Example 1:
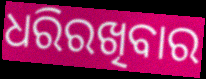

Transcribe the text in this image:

ଧରିରଖିବାର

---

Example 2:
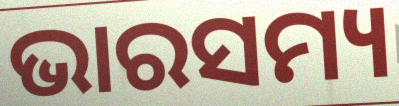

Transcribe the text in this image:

ଭାରସମ୍ୟ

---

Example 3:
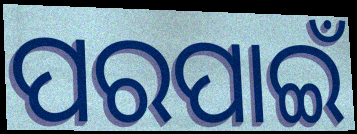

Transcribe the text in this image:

ପରପାଇଁ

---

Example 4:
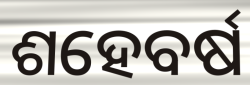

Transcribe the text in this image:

ଶହେବର୍ଷ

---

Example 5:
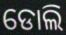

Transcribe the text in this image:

ଡୋଲି